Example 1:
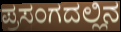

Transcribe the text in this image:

ಪ್ರಸಂಗದಲ್ಲಿನ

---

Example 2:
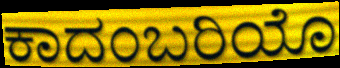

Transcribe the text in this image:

ಕಾದಂಬರಿಯೊ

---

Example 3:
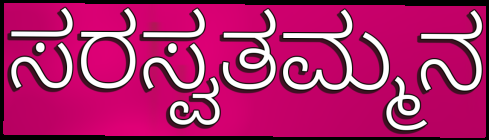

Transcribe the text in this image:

ಸರಸ್ವತಮ್ಮನ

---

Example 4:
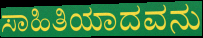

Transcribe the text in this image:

ಸಾಹಿತಿಯಾದವನು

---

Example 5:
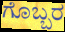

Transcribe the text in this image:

ಗೊಬ್ಬರ